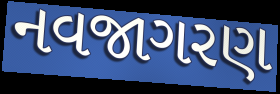
નવજાગરણ